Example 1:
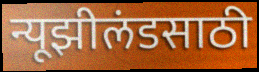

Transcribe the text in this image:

न्यूझीलंडसाठी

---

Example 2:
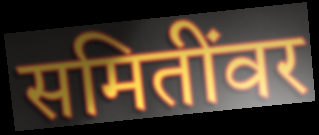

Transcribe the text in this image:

समितींवर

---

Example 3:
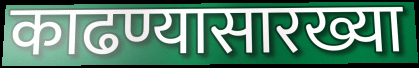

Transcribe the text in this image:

काढण्यासारख्या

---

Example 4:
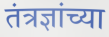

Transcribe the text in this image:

तंत्रज्ञांच्या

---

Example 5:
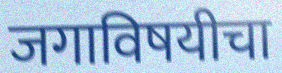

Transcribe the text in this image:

जगाविषयीचा